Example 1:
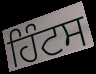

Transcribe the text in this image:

ਹਿੰਟਸ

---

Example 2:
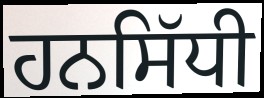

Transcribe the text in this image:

ਹਨਸਿੱਧੀ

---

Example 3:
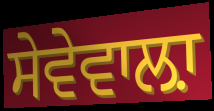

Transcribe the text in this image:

ਸੇਵੇਵਾਲ਼ਾ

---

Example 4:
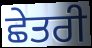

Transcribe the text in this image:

ਛੇਤਰੀ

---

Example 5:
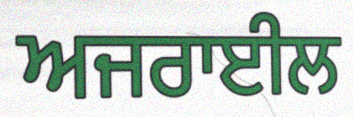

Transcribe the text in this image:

ਅਜਰਾਈਲ